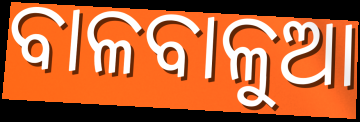
ବାଳବାଳୁଆ